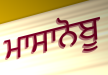
ਮਾਸਾਨੋਬੂ